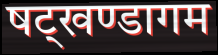
षट्खण्डागम